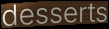
desserts